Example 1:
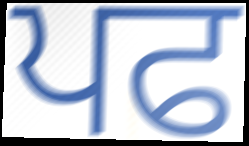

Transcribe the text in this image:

ਪਫ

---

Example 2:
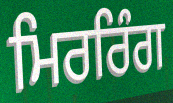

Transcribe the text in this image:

ਮਿਰਰਿੰਗ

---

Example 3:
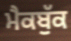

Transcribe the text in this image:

ਮੈਕਬੁੱਕ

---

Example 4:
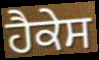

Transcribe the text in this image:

ਹੈਕੇਸ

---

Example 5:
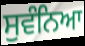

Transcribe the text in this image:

ਸੁਵੰਨਿਆ